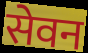
सेवन